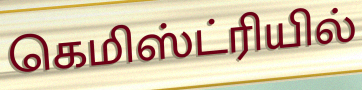
கெமிஸ்ட்ரியில்